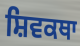
ਸ਼ਿਵਕਥਾ